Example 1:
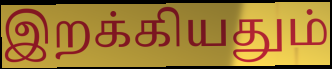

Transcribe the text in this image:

இறக்கியதும்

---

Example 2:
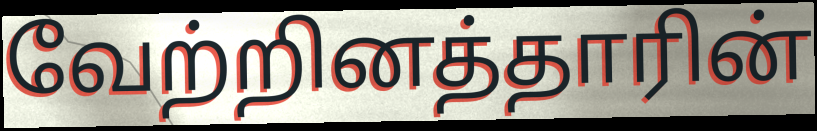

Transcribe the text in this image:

வேற்றினத்தாரின்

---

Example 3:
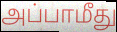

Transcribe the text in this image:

அப்பாமீது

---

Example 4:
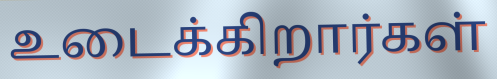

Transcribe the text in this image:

உடைக்கிறார்கள்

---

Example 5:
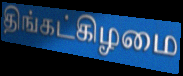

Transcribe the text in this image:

திங்கட்கிழமை